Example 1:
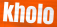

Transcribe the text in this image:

kholo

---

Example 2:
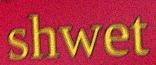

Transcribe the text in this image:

shwet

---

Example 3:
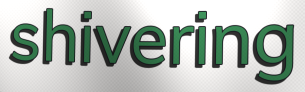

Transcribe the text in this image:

shivering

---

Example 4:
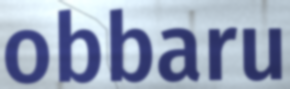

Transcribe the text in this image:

obbaru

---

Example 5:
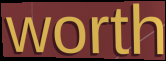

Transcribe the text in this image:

worth